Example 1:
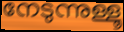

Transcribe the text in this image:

നേടുന്നുള്ളൂ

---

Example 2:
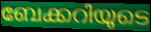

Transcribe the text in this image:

ബേക്കറിയുടെ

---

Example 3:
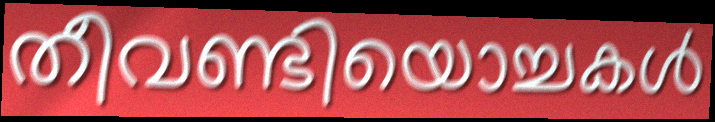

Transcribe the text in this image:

തീവണ്ടിയൊച്ചകൾ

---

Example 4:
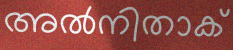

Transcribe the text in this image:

അൽനിതാക്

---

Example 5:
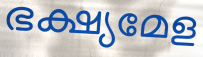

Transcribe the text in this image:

ഭക്ഷ്യമേള